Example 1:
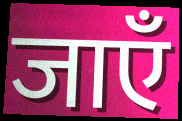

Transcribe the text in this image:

जाएँ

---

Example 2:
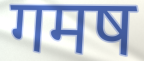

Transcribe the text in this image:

गमष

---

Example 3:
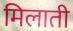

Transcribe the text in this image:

मिलाती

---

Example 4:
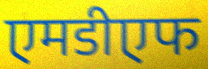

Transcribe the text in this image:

एमडीएफ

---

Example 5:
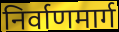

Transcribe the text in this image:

निर्वाणमार्ग